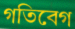
গতিবেগ